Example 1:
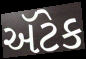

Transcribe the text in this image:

ઍટેક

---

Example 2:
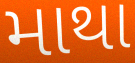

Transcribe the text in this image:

માથા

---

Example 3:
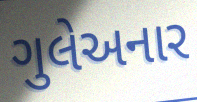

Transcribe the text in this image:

ગુલેઅનાર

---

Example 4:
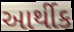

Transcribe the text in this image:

આર્થીક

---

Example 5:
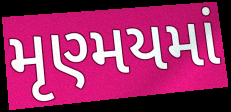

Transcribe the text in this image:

મૃણ્મયમાં